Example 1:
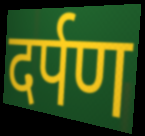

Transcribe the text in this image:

दर्पण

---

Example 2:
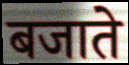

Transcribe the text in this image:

बजाते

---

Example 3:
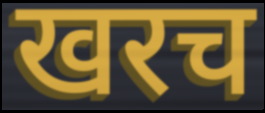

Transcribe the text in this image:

खरच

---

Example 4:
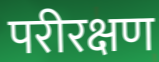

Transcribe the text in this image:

परीरक्षण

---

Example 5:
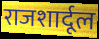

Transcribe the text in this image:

राजशार्दूल